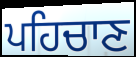
ਪਹਿਚਾਣ